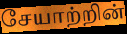
சேயாற்றின்